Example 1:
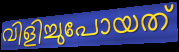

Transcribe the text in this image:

വിളിച്ചുപോയത്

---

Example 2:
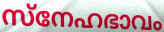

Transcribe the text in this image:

സ്നേഹഭാവം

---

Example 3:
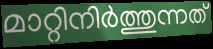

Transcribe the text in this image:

മാറ്റിനിർത്തുന്നത്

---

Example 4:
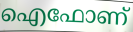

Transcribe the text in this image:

ഐഫോണ്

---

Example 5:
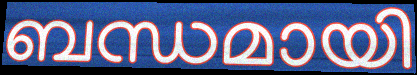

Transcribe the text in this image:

ബന്ധമായി